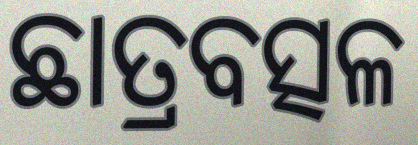
ଛାତ୍ରବତ୍ସଳ